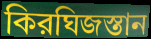
কিরঘিজস্তান